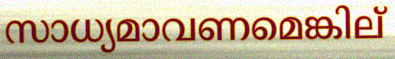
സാധ്യമാവണമെങ്കില്